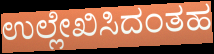
ಉಲ್ಲೇಖಿಸಿದಂತಹ